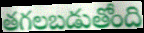
తగలబడుతోంది